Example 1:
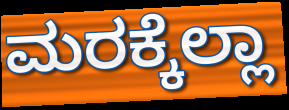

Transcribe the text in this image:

ಮರಕ್ಕೆಲ್ಲಾ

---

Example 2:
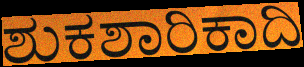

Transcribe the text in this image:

ಶುಕಶಾರಿಕಾದಿ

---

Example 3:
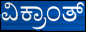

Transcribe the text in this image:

ವಿಕ್ರಾಂತ್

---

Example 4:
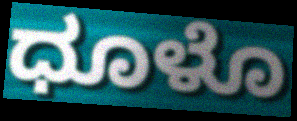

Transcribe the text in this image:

ಧೂಳೊ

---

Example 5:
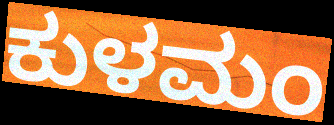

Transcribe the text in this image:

ಕುಳಮಂ